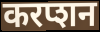
करप्शन